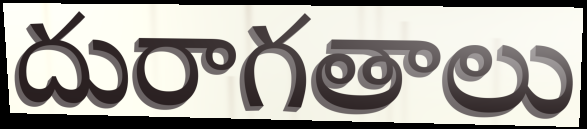
దురాగతాలు